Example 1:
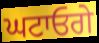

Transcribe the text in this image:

ਘਟਾਓਗੇ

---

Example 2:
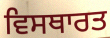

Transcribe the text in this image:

ਵਿਸਥਾਰਤ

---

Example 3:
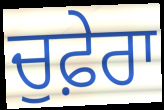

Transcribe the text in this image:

ਚੁਫ਼ੇਰਾ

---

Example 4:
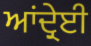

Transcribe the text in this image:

ਆਂਦ੍ਰੇਈ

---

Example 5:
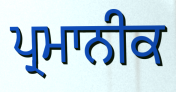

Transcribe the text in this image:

ਪ੍ਰਮਾਨੀਕ